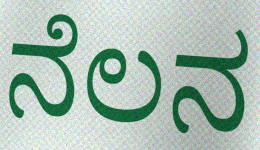
ನೆಲನ